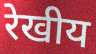
रेखीय